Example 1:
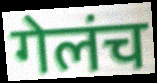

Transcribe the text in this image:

गेलंच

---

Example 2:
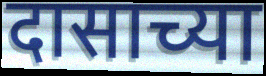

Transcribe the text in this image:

दासाच्या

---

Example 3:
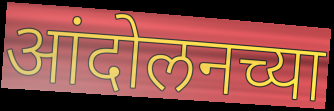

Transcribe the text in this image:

आंदोलनच्या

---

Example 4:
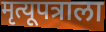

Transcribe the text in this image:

मृत्यूपत्राला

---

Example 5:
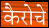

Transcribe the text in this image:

कैरोचे